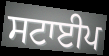
ਸਟਾਈਪ